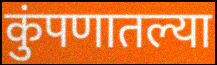
कुंपणातल्या